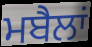
ਮਬੈਲਾਂ